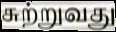
சுற்றுவது